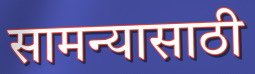
सामन्यासाठी